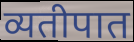
व्यतीपात